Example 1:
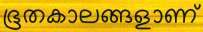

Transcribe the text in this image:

ഭൂതകാലങ്ങളാണ്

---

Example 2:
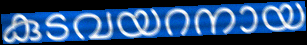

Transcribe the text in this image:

കുടവയറനായ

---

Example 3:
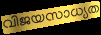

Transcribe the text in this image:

വിജയസാധ്യത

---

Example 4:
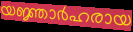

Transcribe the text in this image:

യജ്ഞാർഹരായ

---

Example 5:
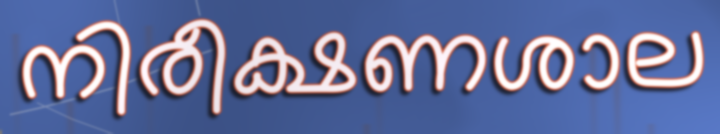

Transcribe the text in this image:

നിരീക്ഷണശാല